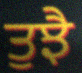
ਤੁਝੈ